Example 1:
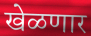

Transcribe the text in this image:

खेळणार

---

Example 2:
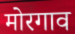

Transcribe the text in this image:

मोरगाव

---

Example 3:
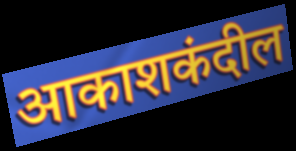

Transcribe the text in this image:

आकाशकंदील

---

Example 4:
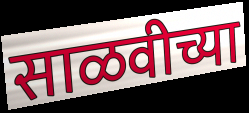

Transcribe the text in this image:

साळवीच्या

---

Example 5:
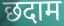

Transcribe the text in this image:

छदाम